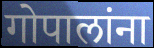
गोपालांना